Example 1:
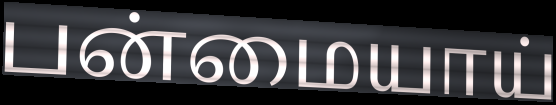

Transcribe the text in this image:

பன்மையாய்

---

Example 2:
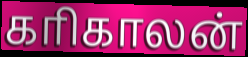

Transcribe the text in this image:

கரிகாலன்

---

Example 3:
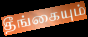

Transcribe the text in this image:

தீங்கையும்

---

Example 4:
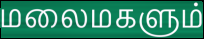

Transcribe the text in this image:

மலைமகளும்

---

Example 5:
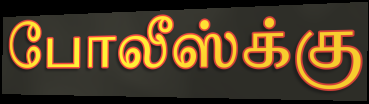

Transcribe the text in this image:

போலீஸ்க்கு